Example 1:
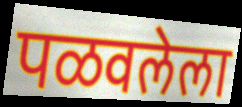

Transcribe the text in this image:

पळवलेला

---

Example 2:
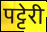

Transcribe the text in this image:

पट्टेरी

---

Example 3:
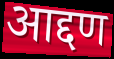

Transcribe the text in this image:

आद्दण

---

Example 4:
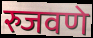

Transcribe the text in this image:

रुजवणे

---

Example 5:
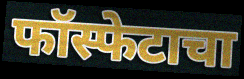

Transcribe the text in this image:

फॉस्फेटाचा